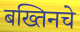
बख्तिनचे